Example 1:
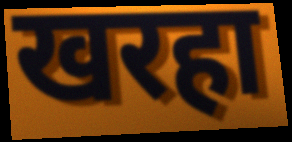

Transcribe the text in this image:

खरहा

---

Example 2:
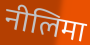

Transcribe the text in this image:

नीलिमा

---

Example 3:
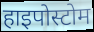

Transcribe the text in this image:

हाइपोस्टोम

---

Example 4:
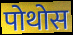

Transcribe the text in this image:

पोथोस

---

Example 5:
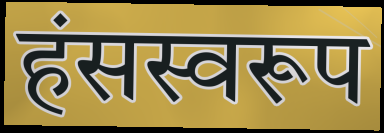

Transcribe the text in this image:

हंसस्वरूप